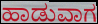
ಹಾಡುವಾಗ